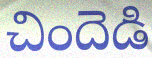
చిందెడి